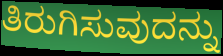
ತಿರುಗಿಸುವುದನ್ನು